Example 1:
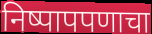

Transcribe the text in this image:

निष्पापपणाचा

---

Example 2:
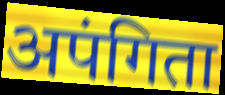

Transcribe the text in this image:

अपंगिता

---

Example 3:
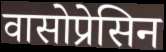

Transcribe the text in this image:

वासोप्रेसिन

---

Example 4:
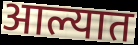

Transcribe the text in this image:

आल्यात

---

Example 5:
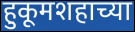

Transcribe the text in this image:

हुकूमशहाच्या